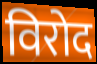
विरोद